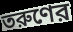
তরুণের